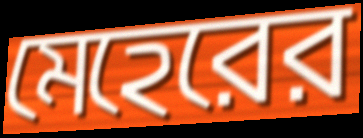
মেহেরের